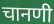
चानणी